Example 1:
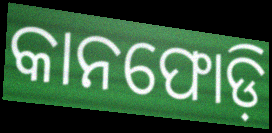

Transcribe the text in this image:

କାନଫୋଡ଼ି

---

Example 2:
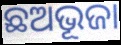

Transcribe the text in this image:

ଛଅଭୂଜା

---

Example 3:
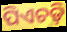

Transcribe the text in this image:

ପିଏଚଡ଼ି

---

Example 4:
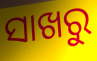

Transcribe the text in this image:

ସାଖରୁ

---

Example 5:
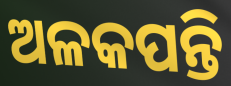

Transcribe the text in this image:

ଅଳକପନ୍ତି